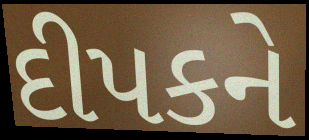
દીપકને